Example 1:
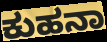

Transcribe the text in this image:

ಕುಹನಾ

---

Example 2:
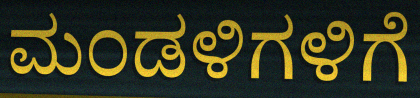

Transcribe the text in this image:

ಮಂಡಳಿಗಳಿಗೆ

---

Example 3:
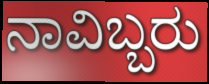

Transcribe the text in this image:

ನಾವಿಬ್ಬರು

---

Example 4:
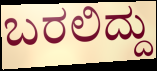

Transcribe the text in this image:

ಬರಲಿದ್ದು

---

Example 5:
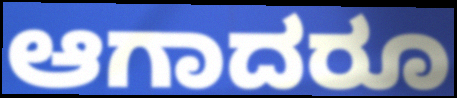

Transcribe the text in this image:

ಆಗಾದರೂ